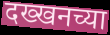
दख्खनच्या